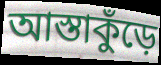
আস্তাকুঁড়ে